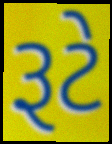
રૂટે